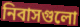
নিবাসগুলো